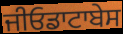
ਜੀਓਡਾਟਾਬੇਸ